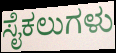
ಸೈಕಲುಗಳು